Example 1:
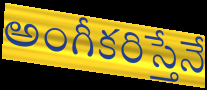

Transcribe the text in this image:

అంగీకరిస్తేనే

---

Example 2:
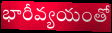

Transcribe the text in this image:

భారీవ్యయంతో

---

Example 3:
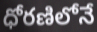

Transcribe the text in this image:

ధోరణిలోనే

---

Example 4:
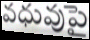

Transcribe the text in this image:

వధువుపై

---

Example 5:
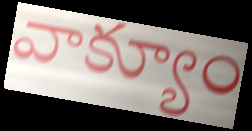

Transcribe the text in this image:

వాక్యూం